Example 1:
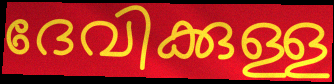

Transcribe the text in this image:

ദേവിക്കുള്ള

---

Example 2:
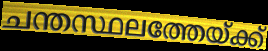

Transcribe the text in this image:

ചന്തസ്ഥലത്തേയ്ക്ക്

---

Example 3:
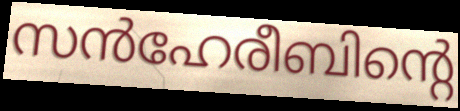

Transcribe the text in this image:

സൻഹേരീബിന്റെ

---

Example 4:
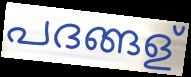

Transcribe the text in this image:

പദങ്ങള്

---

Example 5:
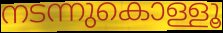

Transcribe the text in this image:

നടന്നുകൊള്ളൂ